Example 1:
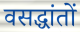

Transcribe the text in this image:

वसद्धांतों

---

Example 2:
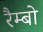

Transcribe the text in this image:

रैम्बो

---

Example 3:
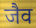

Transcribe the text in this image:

जैव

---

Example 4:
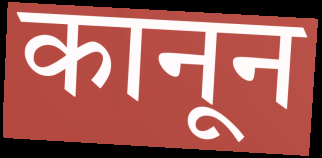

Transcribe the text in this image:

कानून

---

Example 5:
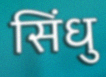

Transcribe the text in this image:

सिंधु